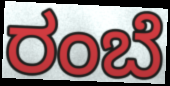
ರಂಬೆ